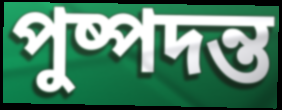
পুষ্পদন্ত